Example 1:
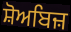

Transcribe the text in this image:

ਸ਼ੋਅਬਿਜ਼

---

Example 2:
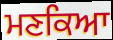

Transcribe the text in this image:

ਮਣਕਿਆ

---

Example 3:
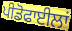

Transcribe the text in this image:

ਪੀਡੋਫਾਈਲਾਂ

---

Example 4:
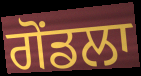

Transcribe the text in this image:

ਗੋਂਡਲਾ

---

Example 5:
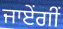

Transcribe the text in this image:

ਜਾਏਂਗੀਂ